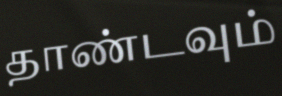
தாண்டவும்